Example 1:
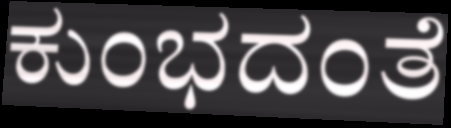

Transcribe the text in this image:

ಕುಂಭದಂತೆ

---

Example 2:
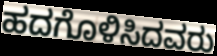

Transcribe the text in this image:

ಹದಗೊಳಿಸಿದವರು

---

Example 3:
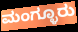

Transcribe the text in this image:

ಮಂಗ್ಳೂರು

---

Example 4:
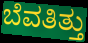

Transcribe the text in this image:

ಬೆವತಿತ್ತು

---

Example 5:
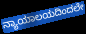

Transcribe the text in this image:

ನ್ಯಾಯಾಲಯದಿಂದಲೇ